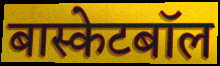
बास्केटबॉल